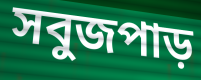
সবুজপাড়